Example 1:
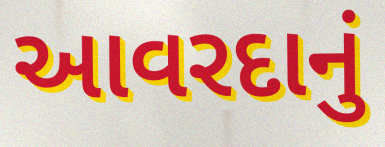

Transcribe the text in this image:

આવરદાનું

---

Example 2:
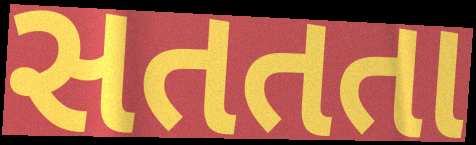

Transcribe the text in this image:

સતતતા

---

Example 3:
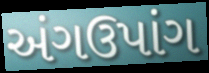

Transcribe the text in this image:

અંગઉપાંગ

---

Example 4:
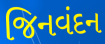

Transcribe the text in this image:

જિનવંદન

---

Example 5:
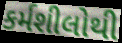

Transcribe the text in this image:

કર્મશીલોથી